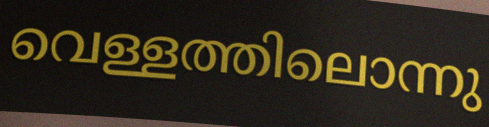
വെള്ളത്തിലൊന്നു